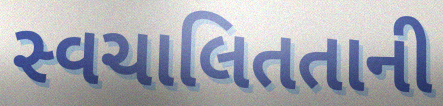
સ્વચાલિતતાની